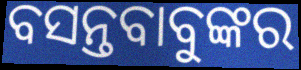
ବସନ୍ତବାବୁଙ୍କର